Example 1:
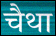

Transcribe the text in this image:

चैथा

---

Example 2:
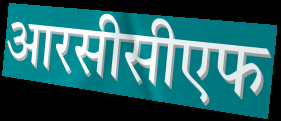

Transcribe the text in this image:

आरसीसीएफ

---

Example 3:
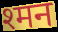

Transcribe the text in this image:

श्मन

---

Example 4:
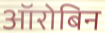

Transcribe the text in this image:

ऑरोबिन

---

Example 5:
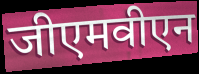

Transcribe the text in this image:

जीएमवीएन